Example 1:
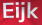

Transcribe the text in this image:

Eijk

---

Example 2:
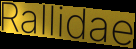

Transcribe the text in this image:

Rallidae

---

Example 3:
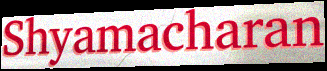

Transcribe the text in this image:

Shyamacharan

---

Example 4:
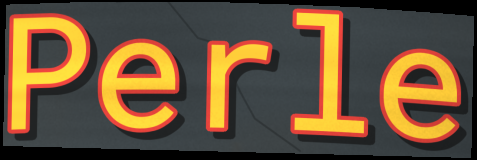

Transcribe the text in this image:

Perle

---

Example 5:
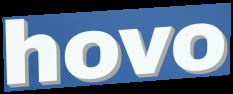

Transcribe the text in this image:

hovo